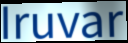
Iruvar